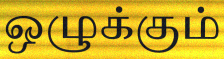
ஒழுக்கும்